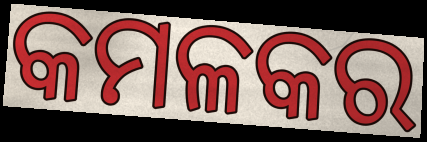
କମଳକର